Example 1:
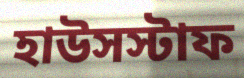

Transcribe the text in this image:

হাউসস্টাফ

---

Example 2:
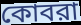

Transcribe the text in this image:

কোবরা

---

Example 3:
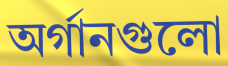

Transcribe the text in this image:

অর্গানগুলো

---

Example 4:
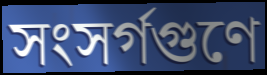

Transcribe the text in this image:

সংসর্গগুণে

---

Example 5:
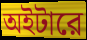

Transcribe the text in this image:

অইটারে